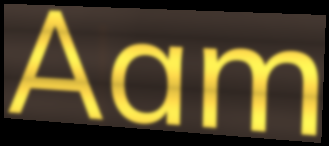
Aam